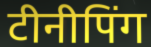
टीनीपिंग